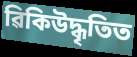
ৱিকিউদ্ধৃতিত